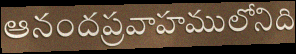
ఆనందప్రవాహములోనిది